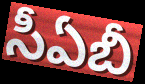
సీఏబీ